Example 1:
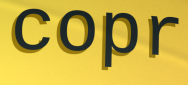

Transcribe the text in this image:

copr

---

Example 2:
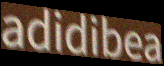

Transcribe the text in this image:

adidibea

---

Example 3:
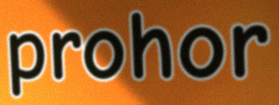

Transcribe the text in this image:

prohor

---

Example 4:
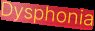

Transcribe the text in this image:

Dysphonia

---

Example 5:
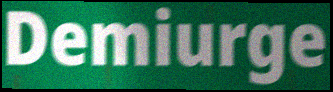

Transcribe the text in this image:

Demiurge